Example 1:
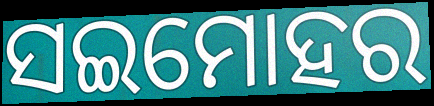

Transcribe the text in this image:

ସଇମୋହର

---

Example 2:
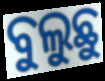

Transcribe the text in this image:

ବୁଲୁଛୁ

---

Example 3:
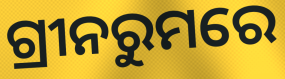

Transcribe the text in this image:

ଗ୍ରୀନରୁମରେ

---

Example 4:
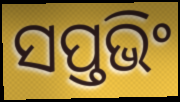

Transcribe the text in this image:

ସପ୍ତଭିଂ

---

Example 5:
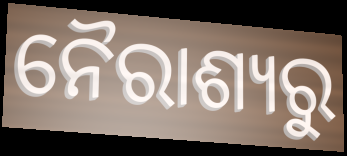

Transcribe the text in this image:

ନୈରାଶ୍ୟରୁ